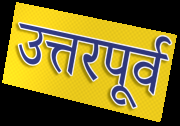
उत्तरपूर्व